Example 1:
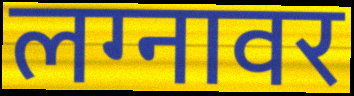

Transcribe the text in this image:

लग्नावर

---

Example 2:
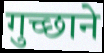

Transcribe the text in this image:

गुच्छाने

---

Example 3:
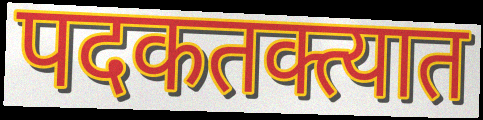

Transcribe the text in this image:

पदकतक्त्यात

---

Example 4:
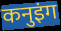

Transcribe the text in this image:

कनुइंग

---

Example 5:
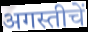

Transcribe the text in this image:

अगस्तीचें